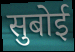
सुबोई